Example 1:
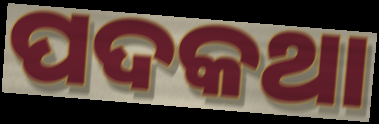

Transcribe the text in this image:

ପଦକଥା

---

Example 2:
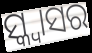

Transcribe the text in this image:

ସ୍କ୍ବାସର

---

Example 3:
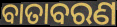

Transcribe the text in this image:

ବାତାବରଣ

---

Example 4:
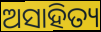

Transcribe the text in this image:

ଅସାହିତ୍ୟ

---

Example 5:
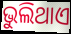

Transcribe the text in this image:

ଭୁଲିଥାଏ